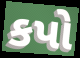
કપો